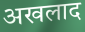
अखलाद